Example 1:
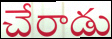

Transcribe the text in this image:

చేరాడు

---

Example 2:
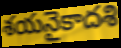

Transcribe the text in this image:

శయనైకాదశి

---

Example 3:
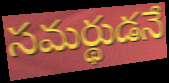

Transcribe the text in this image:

సమర్థుడనే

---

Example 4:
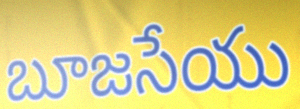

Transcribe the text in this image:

బూజసేయు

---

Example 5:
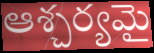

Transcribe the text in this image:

ఆశ్చర్యమై